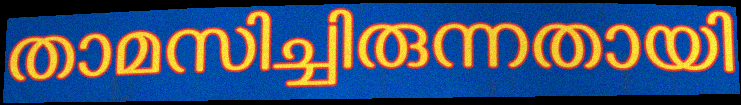
താമസിച്ചിരുന്നതായി